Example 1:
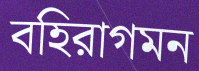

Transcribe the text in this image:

বহিরাগমন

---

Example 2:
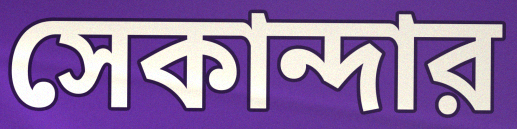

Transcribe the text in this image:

সেকান্দার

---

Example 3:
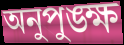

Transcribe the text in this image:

অনুপুঙ্ক্ষ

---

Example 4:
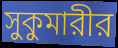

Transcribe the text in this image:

সুকুমারীর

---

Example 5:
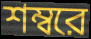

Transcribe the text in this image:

শম্বরে